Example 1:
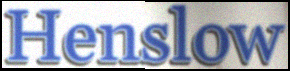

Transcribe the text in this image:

Henslow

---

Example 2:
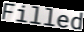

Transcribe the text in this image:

Filled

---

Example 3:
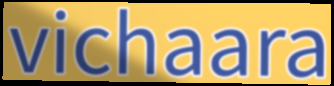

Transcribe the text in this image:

vichaara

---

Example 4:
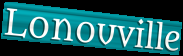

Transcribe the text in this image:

Lonouville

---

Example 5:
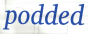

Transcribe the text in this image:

podded